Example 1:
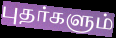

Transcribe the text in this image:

புதர்களும்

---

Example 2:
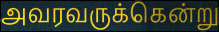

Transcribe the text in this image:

அவரவருக்கென்று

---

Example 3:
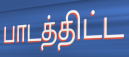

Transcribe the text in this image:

பாடத்திட்ட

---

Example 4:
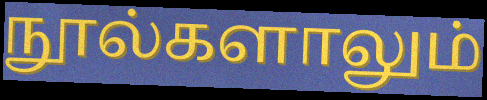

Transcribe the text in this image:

நூல்களாலும்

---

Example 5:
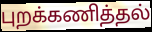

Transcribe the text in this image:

புறக்கணித்தல்